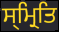
ਸ੍ਮ੍ਰਿਤਿ